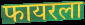
फायरला